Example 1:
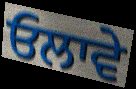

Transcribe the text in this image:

ਓਲਾਵੇ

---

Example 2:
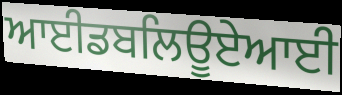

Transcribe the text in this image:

ਆਈਡਬਲਿਊਏਆਈ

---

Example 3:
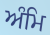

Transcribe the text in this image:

ਅੰਮਿ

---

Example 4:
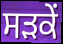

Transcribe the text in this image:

ਸੜਕੇਂ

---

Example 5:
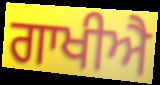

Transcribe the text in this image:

ਗਾਖੀਐ